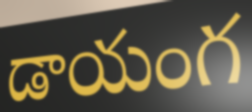
డాయంగ